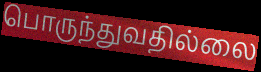
பொருந்துவதில்லை